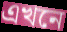
এখনে